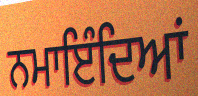
ਨਮਾਇੰਦਿਆਂ